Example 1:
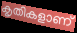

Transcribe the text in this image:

കൃതികളാണ്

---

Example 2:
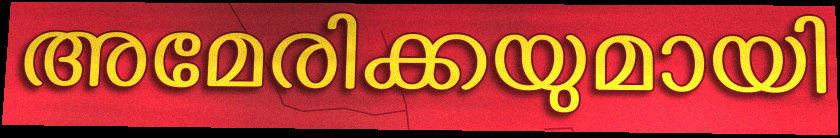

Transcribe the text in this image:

അമേരിക്കയുമായി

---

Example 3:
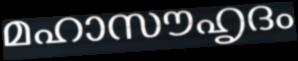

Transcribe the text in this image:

മഹാസൗഹൃദം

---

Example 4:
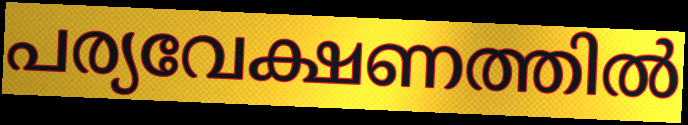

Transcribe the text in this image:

പര്യവേക്ഷണത്തിൽ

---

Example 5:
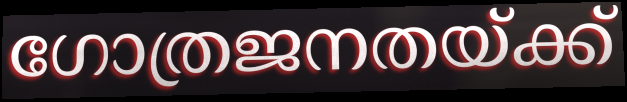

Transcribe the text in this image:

ഗോത്രജനതയ്ക്ക്